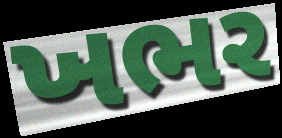
ખભર